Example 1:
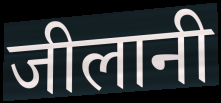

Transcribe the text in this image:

जीलानी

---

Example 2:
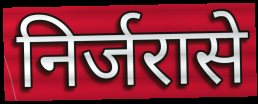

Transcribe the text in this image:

निर्जरासे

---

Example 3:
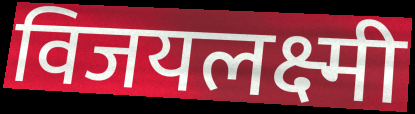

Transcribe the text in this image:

विजयलक्ष्मी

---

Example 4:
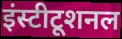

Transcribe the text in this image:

इंस्टीटूशनल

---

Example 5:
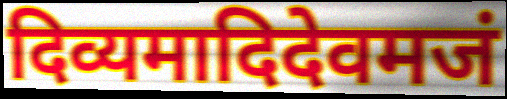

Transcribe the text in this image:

दिव्यमादिदेवमजं